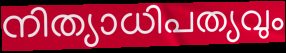
നിത്യാധിപത്യവും